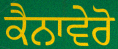
ਕੈਨਾਵੇਰੋ